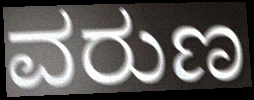
ವರುಣ